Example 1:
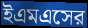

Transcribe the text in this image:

ইএমএসের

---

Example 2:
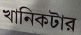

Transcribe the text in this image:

খানিকটার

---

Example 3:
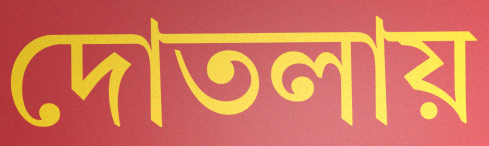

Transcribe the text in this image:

দোতলায়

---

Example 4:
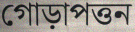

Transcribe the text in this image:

গোড়াপত্তন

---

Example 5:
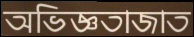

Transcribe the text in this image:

অভিজ্ঞতাজাত